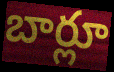
బార్లూ